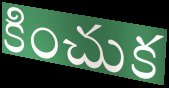
కించుక